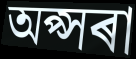
অপ্সৰা